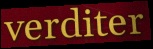
verditer